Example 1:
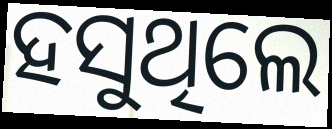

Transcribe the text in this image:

ହସୁଥିଲେ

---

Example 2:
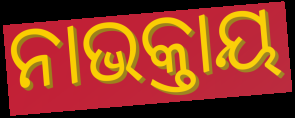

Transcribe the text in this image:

ନାଭକ୍ତାୟ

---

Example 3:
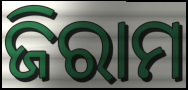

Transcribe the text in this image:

ଜିରାମ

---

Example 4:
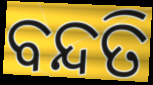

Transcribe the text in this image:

ବନ୍ଦତି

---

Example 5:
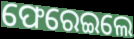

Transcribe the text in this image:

ଫେରେଇଲେ